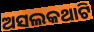
ଅସଲକଥାଟି